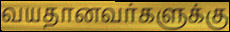
வயதானவர்களுக்கு